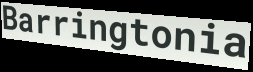
Barringtonia